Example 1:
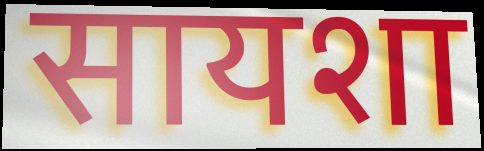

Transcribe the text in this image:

सायशा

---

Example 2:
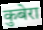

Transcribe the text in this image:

कुबेरा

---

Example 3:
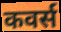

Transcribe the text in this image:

कवर्स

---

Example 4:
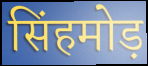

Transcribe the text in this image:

सिंहमोड़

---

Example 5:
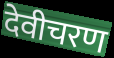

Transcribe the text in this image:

देवीचरण